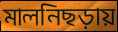
মালনিছড়ায়